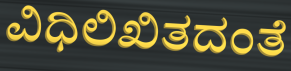
ವಿಧಿಲಿಖಿತದಂತೆ